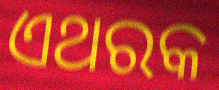
ଏଥରକ